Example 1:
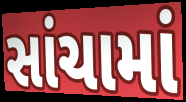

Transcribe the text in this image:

સાંચામાં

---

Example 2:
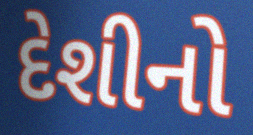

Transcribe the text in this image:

દેશીનો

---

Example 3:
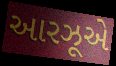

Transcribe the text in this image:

આરઝૂએ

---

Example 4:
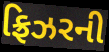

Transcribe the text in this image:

ફ્રિઝરની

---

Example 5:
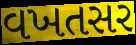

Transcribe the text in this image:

વખતસર